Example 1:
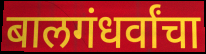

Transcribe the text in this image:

बालगंधर्वांचा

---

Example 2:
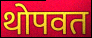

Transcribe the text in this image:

थोपवत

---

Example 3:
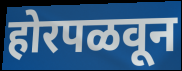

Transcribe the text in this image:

होरपळवून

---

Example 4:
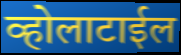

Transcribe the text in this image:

व्होलाटाईल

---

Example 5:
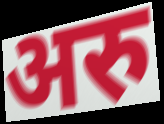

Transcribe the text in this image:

अरु